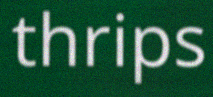
thrips